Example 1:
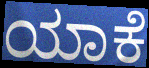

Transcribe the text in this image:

ಯಾಕೆ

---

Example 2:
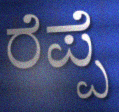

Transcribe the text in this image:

ರೆಪ್ಪೆ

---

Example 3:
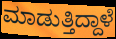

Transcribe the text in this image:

ಮಾಡುತ್ತಿದ್ದಾಳೆ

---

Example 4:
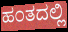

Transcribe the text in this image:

ಹಂತದಲ್ಲಿ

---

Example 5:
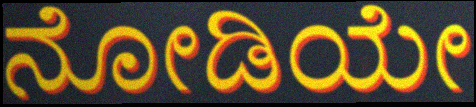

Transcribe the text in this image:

ನೋಡಿಯೇ